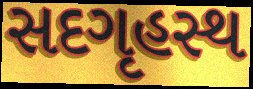
સદગૃહસ્થ